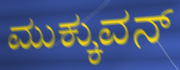
ಮುಕ್ಕುವನ್